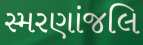
સ્મરણાંજલિ